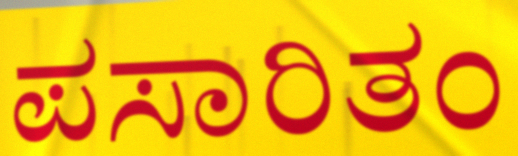
ಪಸಾರಿತಂ